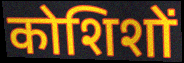
कोशिशों